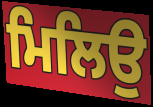
ਮਿਲਿਉ